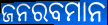
ଜନରବମାନ